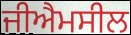
ਜੀਐਮਸੀਲ